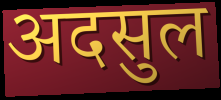
अदसुल